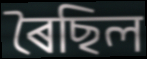
ৰৈছিল